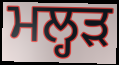
ਮਲ੍ਹੜ